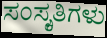
ಸಂಸ್ಕೃತಿಗಳು